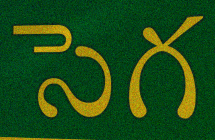
సెగ